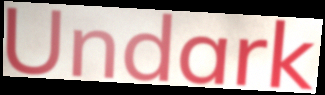
Undark